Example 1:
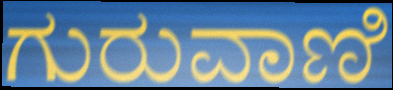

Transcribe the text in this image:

ಗುರುವಾಣಿ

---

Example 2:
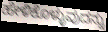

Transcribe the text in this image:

ಹೇಳಿಕೊಳ್ಳುವುದನ್ನು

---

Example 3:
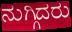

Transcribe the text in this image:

ನುಗ್ಗಿದರು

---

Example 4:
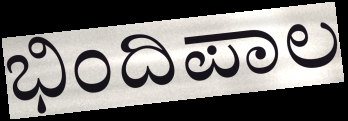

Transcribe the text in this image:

ಭಿಂದಿಪಾಲ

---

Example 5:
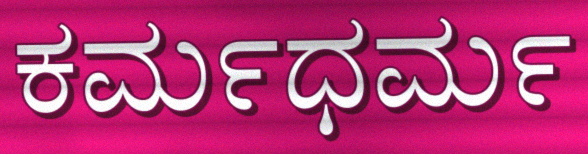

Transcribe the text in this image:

ಕರ್ಮಧರ್ಮ